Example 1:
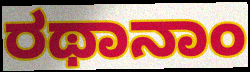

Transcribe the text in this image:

ರಥಾನಾಂ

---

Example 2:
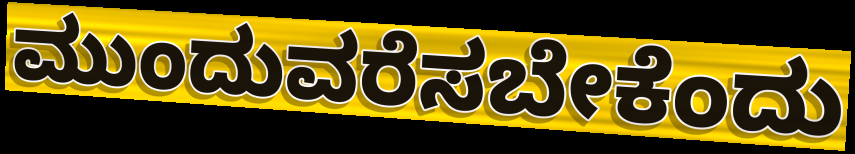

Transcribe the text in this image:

ಮುಂದುವರೆಸಬೇಕೆಂದು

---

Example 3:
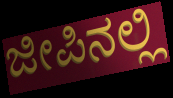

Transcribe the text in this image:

ಜೀಪಿನಲ್ಲಿ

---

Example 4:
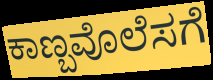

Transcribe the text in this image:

ಕಾಣ್ಬವೊಲೆಸಗೆ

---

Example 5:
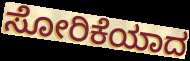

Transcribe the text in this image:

ಸೋರಿಕೆಯಾದ